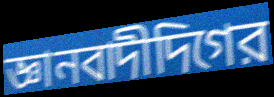
জ্ঞানবাদীদিগের